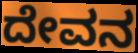
ದೇವನ